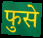
फुसे